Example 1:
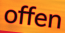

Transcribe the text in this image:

offen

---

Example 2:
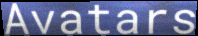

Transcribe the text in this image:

Avatars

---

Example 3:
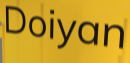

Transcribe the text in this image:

Doiyan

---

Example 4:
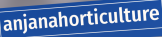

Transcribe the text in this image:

anjanahorticulture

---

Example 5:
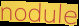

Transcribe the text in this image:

nodule